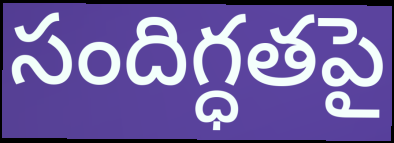
సందిగ్ధతపై